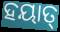
ହୟାତ୍